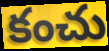
కంచు